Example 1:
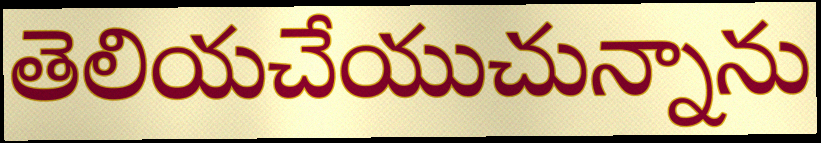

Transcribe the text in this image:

తెలియచేయుచున్నాను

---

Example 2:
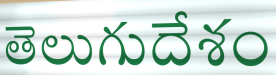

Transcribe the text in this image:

తెలుగుదేశం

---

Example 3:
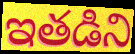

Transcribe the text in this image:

ఇతడిని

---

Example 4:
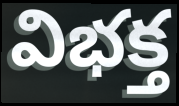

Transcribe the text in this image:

విభక్త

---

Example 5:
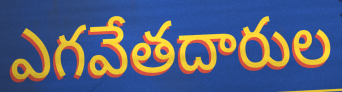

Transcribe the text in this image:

ఎగవేతదారుల